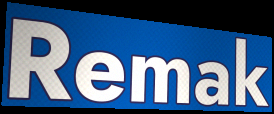
Remak